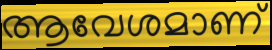
ആവേശമാണ്